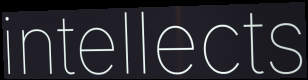
intellects